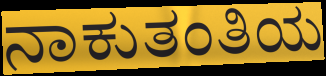
ನಾಕುತಂತಿಯ